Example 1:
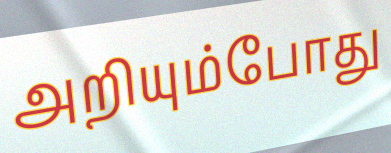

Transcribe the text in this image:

அறியும்போது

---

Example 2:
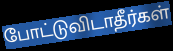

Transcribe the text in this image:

போட்டுவிடாதீர்கள்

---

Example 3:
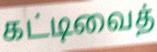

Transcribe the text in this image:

கட்டிவைத்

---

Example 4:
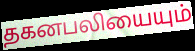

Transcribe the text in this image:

தகனபலியையும்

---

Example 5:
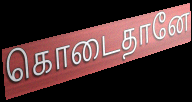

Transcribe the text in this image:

கொடைதானே